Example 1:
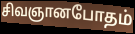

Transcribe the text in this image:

சிவஞானபோதம்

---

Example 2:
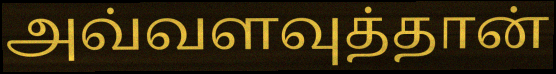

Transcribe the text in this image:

அவ்வளவுத்தான்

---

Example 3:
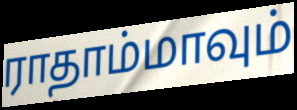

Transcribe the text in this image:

ராதாம்மாவும்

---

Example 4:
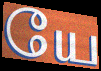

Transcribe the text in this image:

யே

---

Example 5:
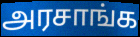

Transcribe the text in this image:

அரசாங்க